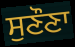
ਸੁਣੌਣਾ